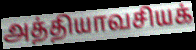
அத்தியாவசியக்